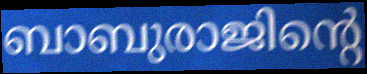
ബാബുരാജിന്റെ